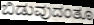
ಬಿಡುವುದಂತೂ